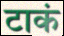
टाकं